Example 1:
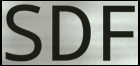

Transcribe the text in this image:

SDF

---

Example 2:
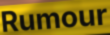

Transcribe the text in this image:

Rumour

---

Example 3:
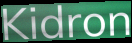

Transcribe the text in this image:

Kidron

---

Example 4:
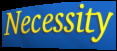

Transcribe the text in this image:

Necessity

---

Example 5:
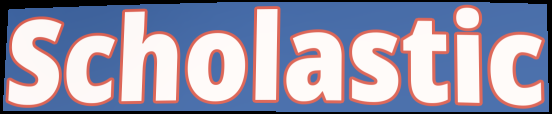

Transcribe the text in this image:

Scholastic